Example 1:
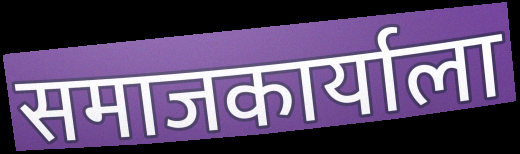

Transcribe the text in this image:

समाजकार्याला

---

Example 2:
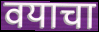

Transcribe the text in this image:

वयाचा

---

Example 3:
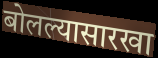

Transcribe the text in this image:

बोलल्यासारखा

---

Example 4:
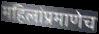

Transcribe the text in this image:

महिलांप्रमाणेच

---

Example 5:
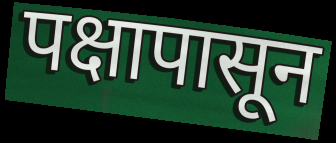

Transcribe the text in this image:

पक्षापासून